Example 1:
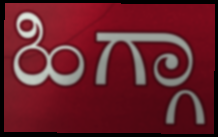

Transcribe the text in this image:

ಹಿಗ್ಗಾ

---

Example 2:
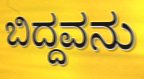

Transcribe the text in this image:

ಬಿದ್ದವನು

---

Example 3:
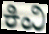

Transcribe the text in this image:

ಕಿವಿ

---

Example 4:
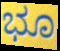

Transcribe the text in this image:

ಭೂ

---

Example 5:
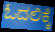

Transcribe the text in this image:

ಓದಲಿಕ್ಕೆ